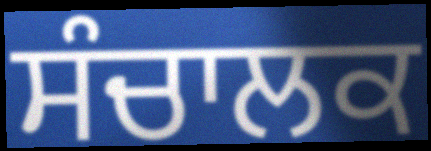
ਸੰਚਾਲਕ